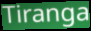
Tiranga